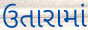
ઉતારામાં